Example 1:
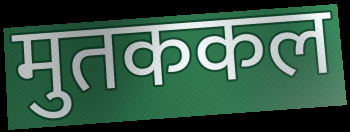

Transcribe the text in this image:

मुतककल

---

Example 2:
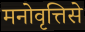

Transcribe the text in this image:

मनोवृत्तिसे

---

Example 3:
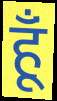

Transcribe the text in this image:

हूँं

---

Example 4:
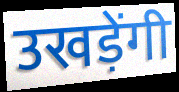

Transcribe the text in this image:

उखड़ेंगी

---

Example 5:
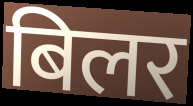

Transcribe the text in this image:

बिलर